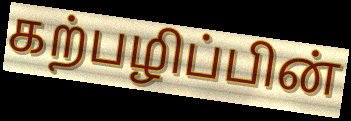
கற்பழிப்பின்